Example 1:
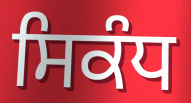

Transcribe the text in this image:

ਸਿਕੰਧ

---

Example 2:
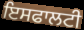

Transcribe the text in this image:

ਇਸਫਾਲਟੀ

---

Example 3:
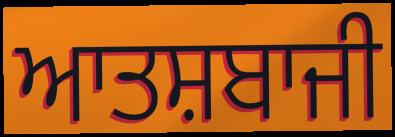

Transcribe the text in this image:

ਆਤਸ਼ਬਾਜੀ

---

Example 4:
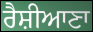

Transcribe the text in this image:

ਰੈਸ਼ੀਆਣਾ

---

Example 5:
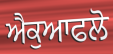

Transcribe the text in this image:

ਐਕੁਆਫਲੋ